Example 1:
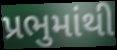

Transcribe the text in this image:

પ્રભુમાંથી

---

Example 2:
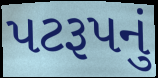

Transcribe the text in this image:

પટરૂપનું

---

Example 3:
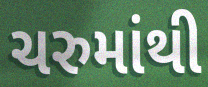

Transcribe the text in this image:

ચરુમાંથી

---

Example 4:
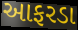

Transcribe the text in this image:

આફરડા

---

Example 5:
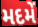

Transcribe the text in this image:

મદમેં